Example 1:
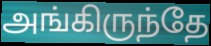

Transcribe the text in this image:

அங்கிருந்தே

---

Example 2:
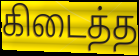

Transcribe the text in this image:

கிடைத்த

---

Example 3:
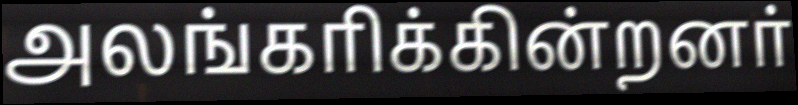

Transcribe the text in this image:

அலங்கரிக்கின்றனர்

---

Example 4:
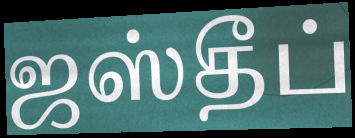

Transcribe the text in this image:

ஜஸ்தீப்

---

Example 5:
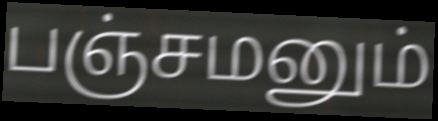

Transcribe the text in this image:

பஞ்சமனும்